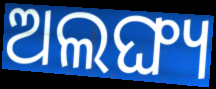
ଅଲଙ୍ଘ୍ୟ